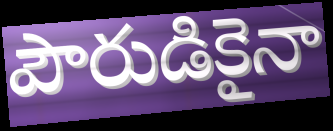
పౌరుడికైనా